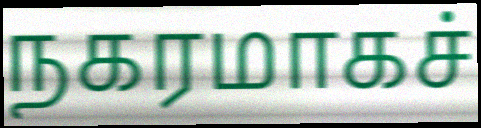
நகரமாகச்